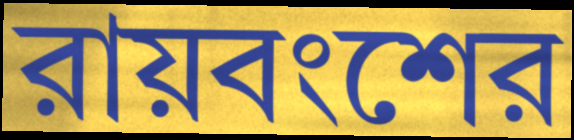
রায়বংশের